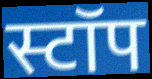
स्टॉप